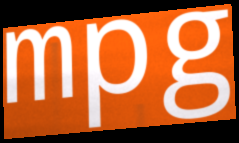
mpg